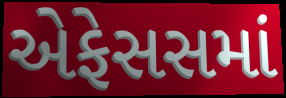
એફેસસમાં